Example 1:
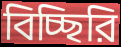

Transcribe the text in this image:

বিচ্ছিরি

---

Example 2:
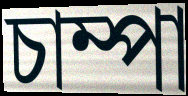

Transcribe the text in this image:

চাম্পা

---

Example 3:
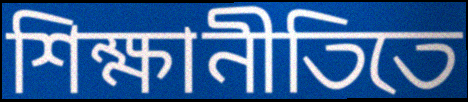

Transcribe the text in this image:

শিক্ষানীতিতে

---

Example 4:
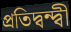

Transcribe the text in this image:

প্রতিদ্বন্দ্বী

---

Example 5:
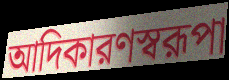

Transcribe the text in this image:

আদিকারণস্বরূপা